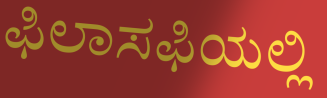
ಫಿಲಾಸಫಿಯಲ್ಲಿ